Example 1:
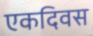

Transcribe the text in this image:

एकदिवस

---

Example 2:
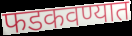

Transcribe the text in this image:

फडकवण्यात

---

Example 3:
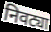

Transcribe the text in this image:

निवट्या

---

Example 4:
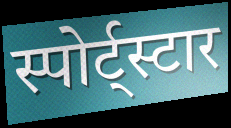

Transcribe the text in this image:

स्पोर्ट्स्टार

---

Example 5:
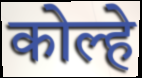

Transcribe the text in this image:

कोल्हे